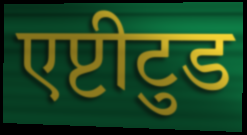
एप्टीटुड